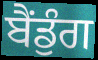
ਬੈਂਡੁੰਗ